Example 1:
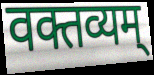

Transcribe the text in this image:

वक्तव्यम्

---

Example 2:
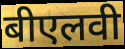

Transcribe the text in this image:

बीएलवी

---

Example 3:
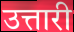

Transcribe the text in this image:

उत्तारी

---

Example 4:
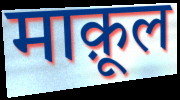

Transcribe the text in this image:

माक़ूल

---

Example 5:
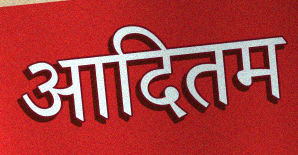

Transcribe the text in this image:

आदितम